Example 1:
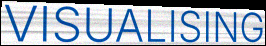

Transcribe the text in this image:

VISUALISING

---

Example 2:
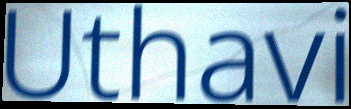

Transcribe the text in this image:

Uthavi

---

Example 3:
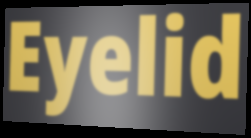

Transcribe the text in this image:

Eyelid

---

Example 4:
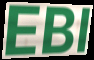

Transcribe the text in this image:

EBI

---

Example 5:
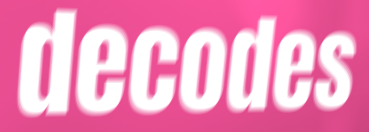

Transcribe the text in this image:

decodes